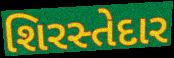
શિરસ્તેદાર